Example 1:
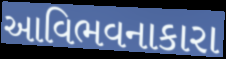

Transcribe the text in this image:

આવિભવનાકારા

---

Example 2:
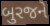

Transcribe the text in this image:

બુરજને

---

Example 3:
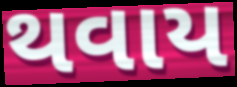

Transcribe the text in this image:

થવાય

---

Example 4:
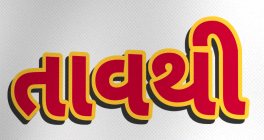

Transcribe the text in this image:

તાવથી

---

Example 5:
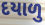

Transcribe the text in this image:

દયાળુ